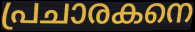
പ്രചാരകനെ